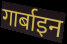
गार्बाइन